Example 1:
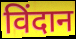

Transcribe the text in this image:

विंदान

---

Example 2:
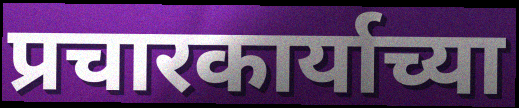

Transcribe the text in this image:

प्रचारकार्याच्या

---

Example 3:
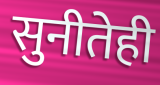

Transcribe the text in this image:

सुनीतेही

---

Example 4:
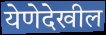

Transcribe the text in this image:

येणेदेखील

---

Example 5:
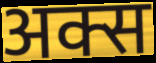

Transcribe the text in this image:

अक्स